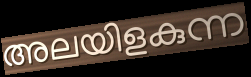
അലയിളകുന്ന